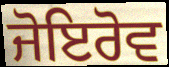
ਜੋਇਰੋਵ